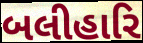
બલીહારિ